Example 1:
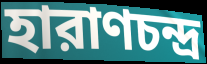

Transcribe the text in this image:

হারাণচন্দ্র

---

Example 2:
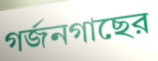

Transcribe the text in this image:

গর্জনগাছের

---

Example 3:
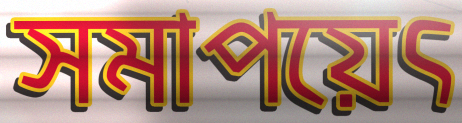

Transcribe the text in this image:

সমাপয়েৎ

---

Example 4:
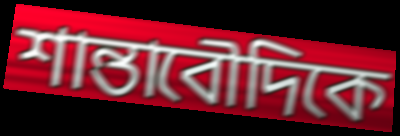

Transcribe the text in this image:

শান্তাবৌদিকে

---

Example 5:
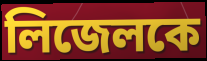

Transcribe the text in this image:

লিজেলকে